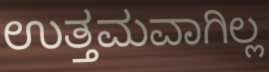
ಉತ್ತಮವಾಗಿಲ್ಲ